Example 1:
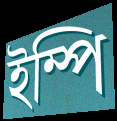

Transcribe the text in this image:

ইম্পি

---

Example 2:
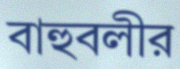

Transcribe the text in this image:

বাহুবলীর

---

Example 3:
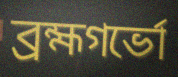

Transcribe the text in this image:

ব্রহ্মগর্ভো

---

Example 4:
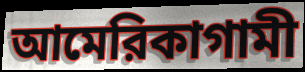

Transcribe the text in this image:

আমেরিকাগামী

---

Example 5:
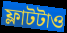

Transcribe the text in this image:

ফ্লাটটাও